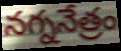
నగ్ననేత్రం